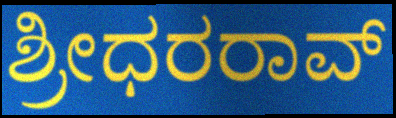
ಶ್ರೀಧರರಾವ್